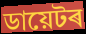
ডায়েটৰ